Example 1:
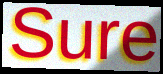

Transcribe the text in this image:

Sure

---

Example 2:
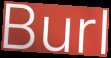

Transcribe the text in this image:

Burl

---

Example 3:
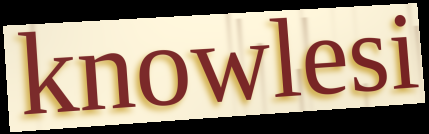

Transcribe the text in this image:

knowlesi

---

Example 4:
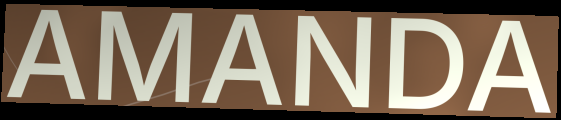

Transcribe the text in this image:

AMANDA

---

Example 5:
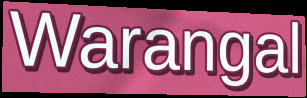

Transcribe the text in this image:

Warangal